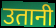
उतानी